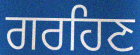
ਗਰਹਿਣ